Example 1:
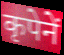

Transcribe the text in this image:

कृपेनें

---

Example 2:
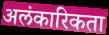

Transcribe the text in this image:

अलंकारिकता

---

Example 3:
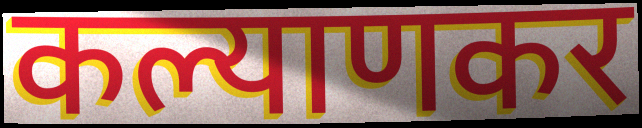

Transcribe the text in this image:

कल्याणकर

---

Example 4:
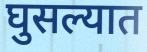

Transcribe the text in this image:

घुसल्यात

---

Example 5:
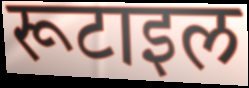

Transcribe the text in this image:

रूटाइल